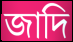
জাদি